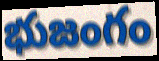
భుజంగం